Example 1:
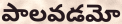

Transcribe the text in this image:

పాలవడమో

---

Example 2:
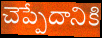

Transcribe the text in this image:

చెప్పేదానికి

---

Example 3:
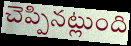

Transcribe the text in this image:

చెప్పినట్లుంది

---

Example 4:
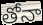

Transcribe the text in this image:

తోనా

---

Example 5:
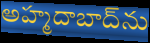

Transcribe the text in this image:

అహ్మదాబాద్‌ను